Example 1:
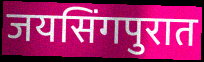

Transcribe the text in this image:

जयसिंगपुरात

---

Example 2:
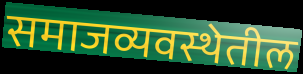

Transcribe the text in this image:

समाजव्यवस्थेतील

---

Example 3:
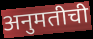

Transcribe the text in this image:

अनुमतीची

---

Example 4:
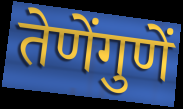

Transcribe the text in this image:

तेणेंगुणें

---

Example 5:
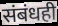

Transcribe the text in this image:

संबंधही